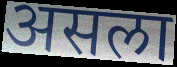
असला